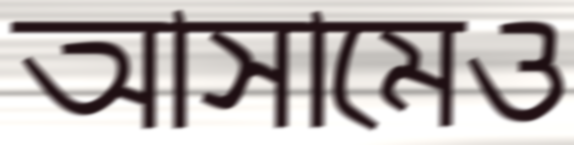
আসামেও